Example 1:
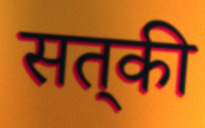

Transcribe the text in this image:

सत्‌की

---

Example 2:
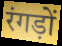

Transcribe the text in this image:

रंगड़ों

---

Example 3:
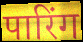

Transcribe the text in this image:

पारिंग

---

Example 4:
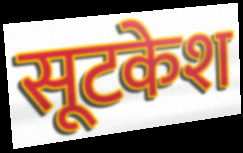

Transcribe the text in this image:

सूटकेश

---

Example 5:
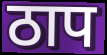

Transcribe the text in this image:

ठाप